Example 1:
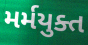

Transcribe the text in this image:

મર્મયુક્ત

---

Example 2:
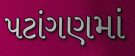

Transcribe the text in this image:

પટાંગણમાં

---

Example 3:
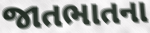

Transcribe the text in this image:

જાતભાતના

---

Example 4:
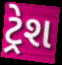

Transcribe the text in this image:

ટ્રેશ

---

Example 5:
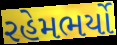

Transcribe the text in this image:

રહેમભર્યો